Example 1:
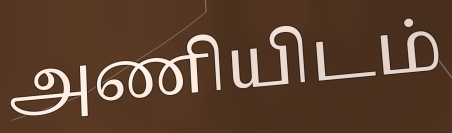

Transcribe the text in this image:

அணியிடம்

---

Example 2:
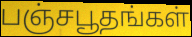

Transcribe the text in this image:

பஞ்சபூதங்கள்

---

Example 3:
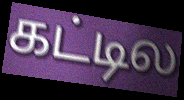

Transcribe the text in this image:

கட்டில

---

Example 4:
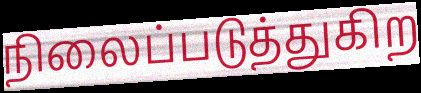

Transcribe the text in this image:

நிலைப்படுத்துகிற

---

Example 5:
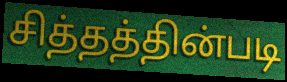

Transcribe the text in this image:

சித்தத்தின்படி